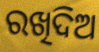
ରଖିଦିଅ